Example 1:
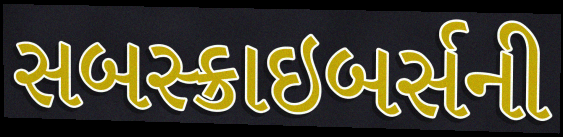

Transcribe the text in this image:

સબસ્ક્રાઇબર્સની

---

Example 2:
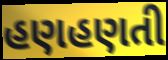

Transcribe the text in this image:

હણહણતી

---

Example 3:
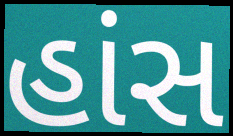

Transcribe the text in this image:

હાંસ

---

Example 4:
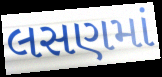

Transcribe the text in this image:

લસણમાં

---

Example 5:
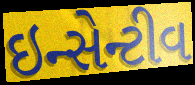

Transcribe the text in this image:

ઇન્સેન્ટીવ